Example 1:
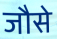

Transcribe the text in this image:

जौसे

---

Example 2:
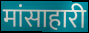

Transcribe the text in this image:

मांसाहारी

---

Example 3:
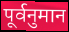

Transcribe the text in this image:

पूर्वनुमान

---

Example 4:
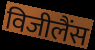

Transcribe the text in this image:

विजीलैंस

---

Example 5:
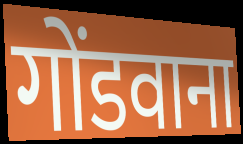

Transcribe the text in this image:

गोंडवाना